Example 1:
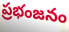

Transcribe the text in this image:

ప్రభంజనం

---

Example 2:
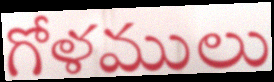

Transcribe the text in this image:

గోళములు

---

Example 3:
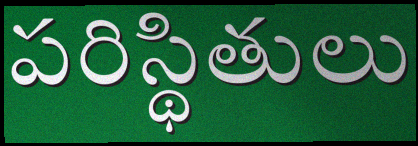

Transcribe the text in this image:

పరిస్థితులు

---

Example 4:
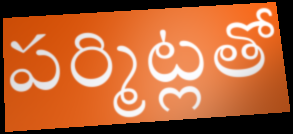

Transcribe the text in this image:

పర్మిట్లతో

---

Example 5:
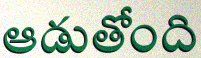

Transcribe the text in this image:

ఆడుతోంది